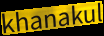
khanakul